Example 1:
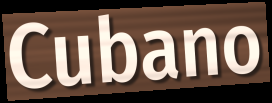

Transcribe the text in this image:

Cubano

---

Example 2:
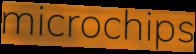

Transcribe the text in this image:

microchips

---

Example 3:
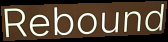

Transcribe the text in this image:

Rebound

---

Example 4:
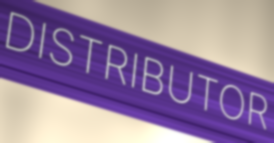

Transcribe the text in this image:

DISTRIBUTOR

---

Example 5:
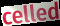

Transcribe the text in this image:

celled